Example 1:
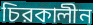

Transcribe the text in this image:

চিরকালীন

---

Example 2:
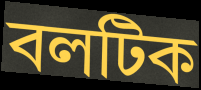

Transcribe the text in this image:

বলটিক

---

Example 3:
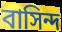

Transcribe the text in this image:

বাসিন্দ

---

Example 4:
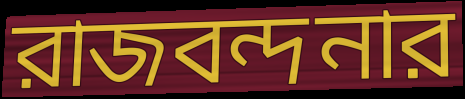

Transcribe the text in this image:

রাজবন্দনার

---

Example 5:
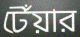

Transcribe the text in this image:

টেঁয়ার